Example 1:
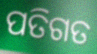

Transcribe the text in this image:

ପତିଗତ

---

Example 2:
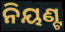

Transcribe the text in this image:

ନିୟଣ୍ଟ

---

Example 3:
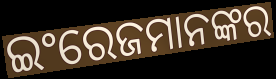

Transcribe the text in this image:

ଇଂରେଜମାନଙ୍କର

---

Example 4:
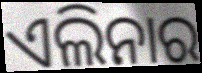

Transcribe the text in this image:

ଏଲିନାର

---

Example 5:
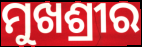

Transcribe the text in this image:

ମୁଖଶ୍ରୀର